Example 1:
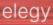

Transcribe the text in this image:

elegy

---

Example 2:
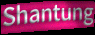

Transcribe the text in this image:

Shantung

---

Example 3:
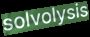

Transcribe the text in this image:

solvolysis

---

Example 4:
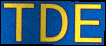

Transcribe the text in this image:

TDE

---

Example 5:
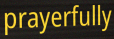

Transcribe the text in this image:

prayerfully